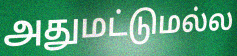
அதுமட்டுமல்ல